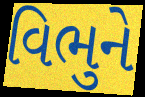
વિભુને